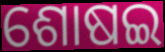
ଶୋଷଇ